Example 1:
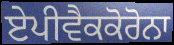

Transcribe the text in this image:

ਏਪੀਵੈਕਕੋਰੋਨਾ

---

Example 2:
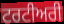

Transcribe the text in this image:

ਟਰਟੀਅਰੀ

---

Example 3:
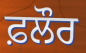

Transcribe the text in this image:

ਫ਼ਲੌਰ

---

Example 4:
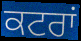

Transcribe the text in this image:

ਕਟਰਾਂ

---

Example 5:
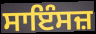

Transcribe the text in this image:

ਸਾਇੰਸਜ਼